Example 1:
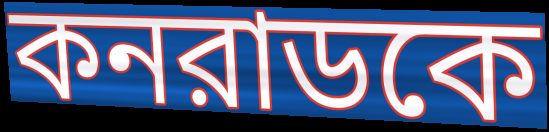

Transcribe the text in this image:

কনরাডকে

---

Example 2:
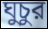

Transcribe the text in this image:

ঘুচুর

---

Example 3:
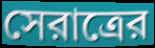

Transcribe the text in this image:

সেরাত্রের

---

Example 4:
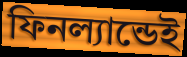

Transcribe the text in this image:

ফিনল্যান্ডেই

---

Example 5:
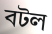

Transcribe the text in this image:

বটল